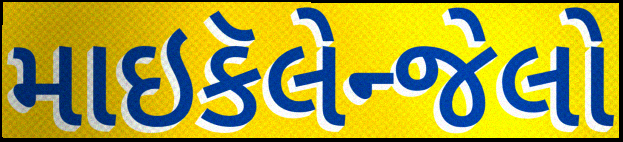
માઇકૅલેન્જેલો